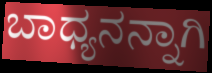
ಬಾಧ್ಯನನ್ನಾಗಿ